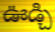
ఊడ్చి